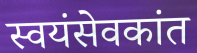
स्वयंसेवकांत